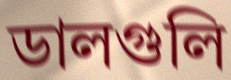
ডালগুলি